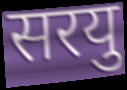
सरयु